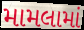
મામલામાં